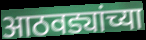
आठवड्यांच्या